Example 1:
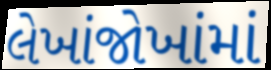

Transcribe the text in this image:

લેખાંજોખાંમાં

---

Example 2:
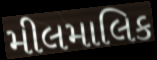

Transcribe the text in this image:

મીલમાલિક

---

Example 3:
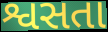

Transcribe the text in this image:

શ્વસતા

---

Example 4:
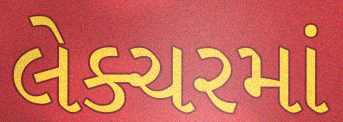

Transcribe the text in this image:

લેક્ચરમાં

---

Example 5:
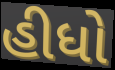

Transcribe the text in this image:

હીધો